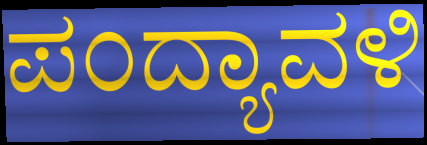
ಪಂದ್ಯಾವಳಿ